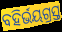
ବହିର୍ଭୟଗ୍ରସ୍ତ